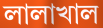
লালাখাল